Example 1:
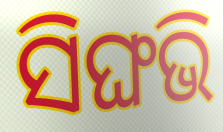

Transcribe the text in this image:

ସିଙ୍ଘଭି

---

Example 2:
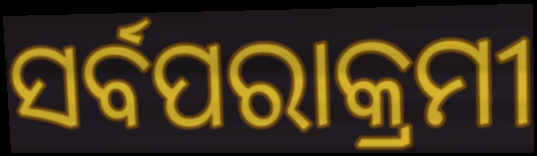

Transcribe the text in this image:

ସର୍ବପରାକ୍ରମୀ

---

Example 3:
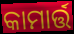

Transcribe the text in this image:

କାମାର୍ତ୍ତ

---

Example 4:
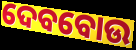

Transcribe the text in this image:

ଦେବବୋଉ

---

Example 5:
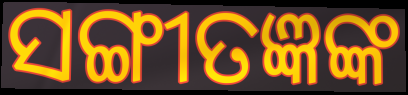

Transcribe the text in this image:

ସଙ୍ଗୀତଜ୍ଞଙ୍କ